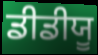
ਡੀਡੀਯੂ